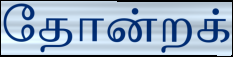
தோன்றக்